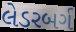
લેડરબર્ગ